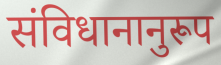
संविधानानुरूप